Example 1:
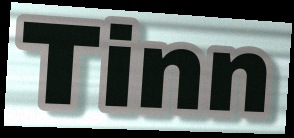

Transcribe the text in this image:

Tinn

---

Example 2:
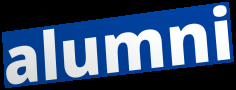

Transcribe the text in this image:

alumni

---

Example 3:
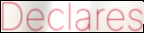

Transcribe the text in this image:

Declares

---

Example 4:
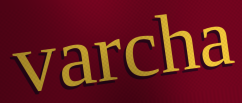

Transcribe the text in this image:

varcha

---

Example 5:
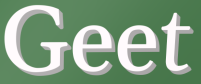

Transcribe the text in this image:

Geet